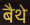
बैथे